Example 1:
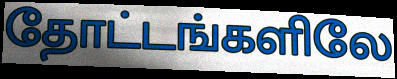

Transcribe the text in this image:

தோட்டங்களிலே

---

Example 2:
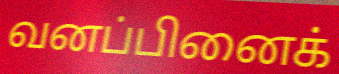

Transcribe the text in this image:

வனப்பினைக்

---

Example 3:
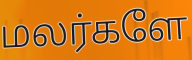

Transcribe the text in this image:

மலர்களே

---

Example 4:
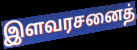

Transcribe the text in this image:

இளவரசனைத்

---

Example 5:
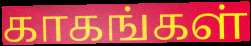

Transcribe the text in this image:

காகங்கள்